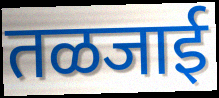
तळजाई